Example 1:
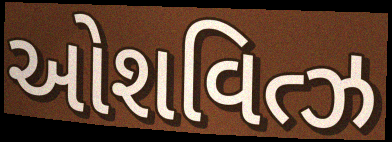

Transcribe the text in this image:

ઓશવિત્ઝ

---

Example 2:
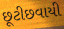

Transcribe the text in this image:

છૂટીછવાયી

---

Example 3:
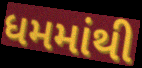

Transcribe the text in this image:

ધમમાંથી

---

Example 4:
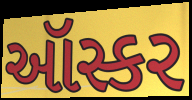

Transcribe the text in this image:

ઑસ્કર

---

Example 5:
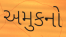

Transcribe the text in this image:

અમુકનો